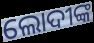
ଲୋଦୀଙ୍କ